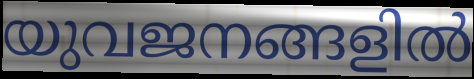
യുവജനങ്ങളിൽ